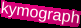
kymograph